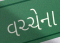
વચ્ચેના